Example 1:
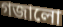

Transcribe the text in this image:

গজালো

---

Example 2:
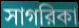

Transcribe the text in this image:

সাগরিকা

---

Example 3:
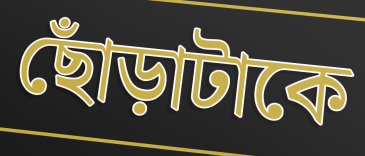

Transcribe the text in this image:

ছোঁড়াটাকে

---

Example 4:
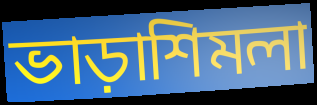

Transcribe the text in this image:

ভাড়াশিমলা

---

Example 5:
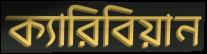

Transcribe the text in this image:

ক্যারিবিয়ান